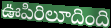
ఊపిరిలూదింది